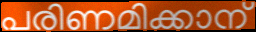
പരിണമിക്കാന്